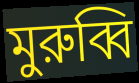
মুরুব্বি